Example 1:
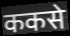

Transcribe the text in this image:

ककसे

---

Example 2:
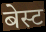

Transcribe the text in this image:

बेस्‍ट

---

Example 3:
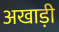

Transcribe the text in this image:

अखाड़ी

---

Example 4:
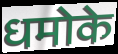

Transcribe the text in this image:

धमोके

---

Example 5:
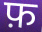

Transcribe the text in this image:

फ़